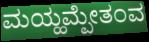
ಮಯ್ಹಮ್ಪೇತಂವ